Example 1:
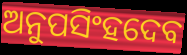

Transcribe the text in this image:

ଅନୁପସିଂହଦେବ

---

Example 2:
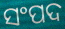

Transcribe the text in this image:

ସଂପଦ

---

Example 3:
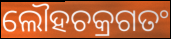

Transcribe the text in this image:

ଲୌହଚକ୍ରଗତଂ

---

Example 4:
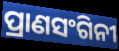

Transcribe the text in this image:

ପ୍ରାଣସଂଗିନୀ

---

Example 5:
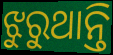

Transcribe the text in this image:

ଝୁରୁଥାନ୍ତି